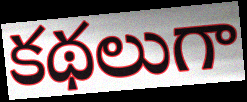
కథలుగా